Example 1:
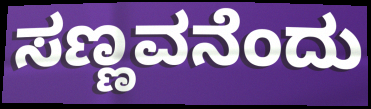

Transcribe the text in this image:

ಸಣ್ಣವನೆಂದು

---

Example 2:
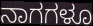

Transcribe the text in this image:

ನಾಗಗಳೂ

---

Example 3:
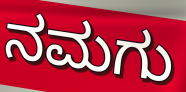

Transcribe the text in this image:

ನಮಗು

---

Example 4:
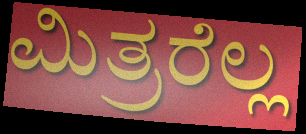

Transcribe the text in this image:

ಮಿತ್ರರೆಲ್ಲ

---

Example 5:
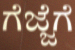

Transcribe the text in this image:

ಗೆಜ್ಜೆಗೆ